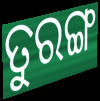
ତୁରଙ୍ଗ